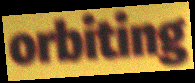
orbiting